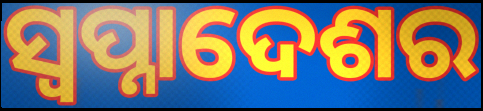
ସ୍ଵପ୍ନାଦେଶର